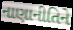
નાણાનીતિને